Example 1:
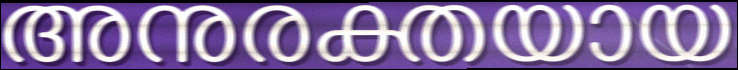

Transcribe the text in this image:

അനുരക്തയായ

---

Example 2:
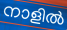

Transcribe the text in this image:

നാളിൽ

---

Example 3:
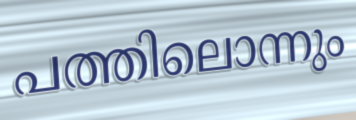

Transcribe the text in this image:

പത്തിലൊന്നും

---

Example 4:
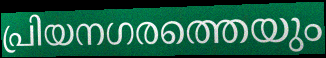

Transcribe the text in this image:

പ്രിയനഗരത്തെയും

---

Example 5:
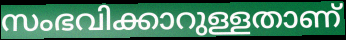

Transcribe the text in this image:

സംഭവിക്കാറുള്ളതാണ്